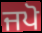
ਜਪੋ